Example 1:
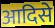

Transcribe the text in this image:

आदिसे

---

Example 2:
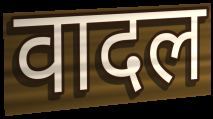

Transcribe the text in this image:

वादल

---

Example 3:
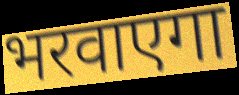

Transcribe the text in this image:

भरवाएगा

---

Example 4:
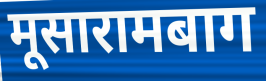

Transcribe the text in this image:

मूसारामबाग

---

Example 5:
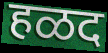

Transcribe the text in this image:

हळद